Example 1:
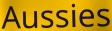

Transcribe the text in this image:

Aussies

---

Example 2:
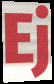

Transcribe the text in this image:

Ej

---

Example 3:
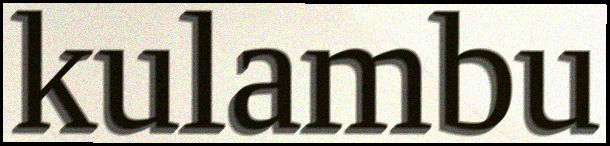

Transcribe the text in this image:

kulambu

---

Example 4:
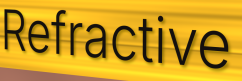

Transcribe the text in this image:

Refractive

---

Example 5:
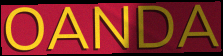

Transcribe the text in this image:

OANDA